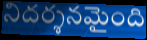
నిదర్శనమైంది